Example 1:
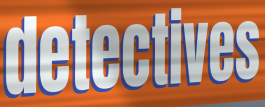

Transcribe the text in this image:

detectives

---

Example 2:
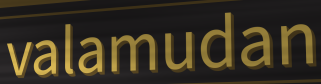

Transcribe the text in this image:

valamudan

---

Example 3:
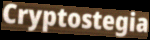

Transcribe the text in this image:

Cryptostegia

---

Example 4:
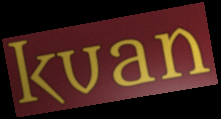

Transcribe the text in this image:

kuan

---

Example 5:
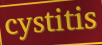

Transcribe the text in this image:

cystitis